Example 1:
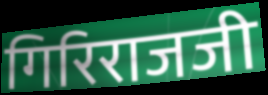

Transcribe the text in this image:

गिरिराजजी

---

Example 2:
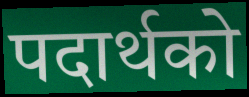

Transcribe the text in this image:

पदार्थको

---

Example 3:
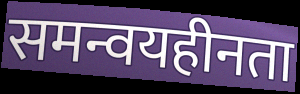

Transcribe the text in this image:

समन्वयहीनता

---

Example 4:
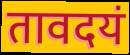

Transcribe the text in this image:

तावदयं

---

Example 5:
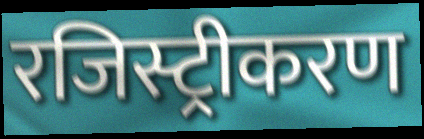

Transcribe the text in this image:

रजिस्‍ट्रीकरण